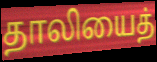
தாலியைத்